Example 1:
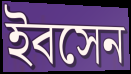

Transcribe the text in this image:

ইবসেন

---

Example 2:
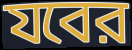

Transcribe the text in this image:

যবের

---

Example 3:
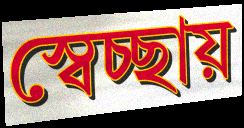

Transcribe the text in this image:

স্বেচ্ছায়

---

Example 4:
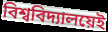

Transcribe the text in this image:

বিশ্ববিদ্যালয়েই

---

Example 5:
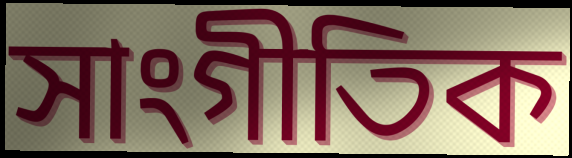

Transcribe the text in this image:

সাংগীতিক